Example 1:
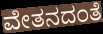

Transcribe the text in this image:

ವೇತನದಂತೆ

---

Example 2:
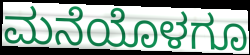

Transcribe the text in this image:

ಮನೆಯೊಳಗೂ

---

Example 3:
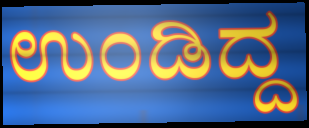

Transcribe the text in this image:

ಉಂಡಿದ್ದ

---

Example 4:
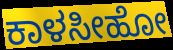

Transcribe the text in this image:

ಕಾಳಸೀಹೋ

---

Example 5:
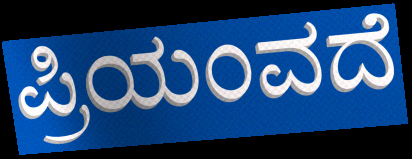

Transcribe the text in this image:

ಪ್ರಿಯಂವದೆ